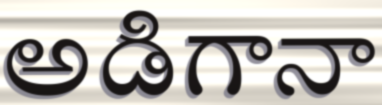
అడిగానా